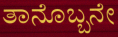
ತಾನೊಬ್ಬನೇ